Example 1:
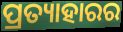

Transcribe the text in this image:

ପ୍ରତ୍ୟାହାରର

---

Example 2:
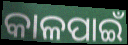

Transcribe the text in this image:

କାଳପାଇଁ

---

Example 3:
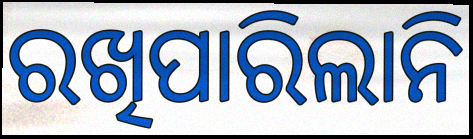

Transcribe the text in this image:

ରଖିପାରିଲାନି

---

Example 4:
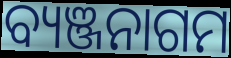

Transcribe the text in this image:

ବ୍ୟଞ୍ଜନାଗମ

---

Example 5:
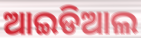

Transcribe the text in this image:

ଆଇଡିଆଲ